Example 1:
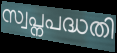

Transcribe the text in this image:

സ്വപ്നപദ്ധതി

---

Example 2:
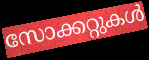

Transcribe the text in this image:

സോക്കറ്റുകൾ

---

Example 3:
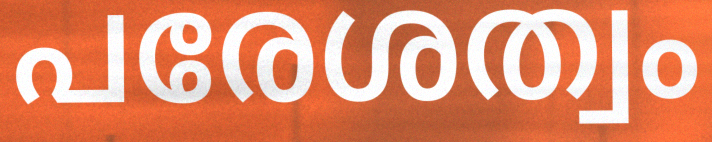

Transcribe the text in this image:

പരേശത്വം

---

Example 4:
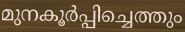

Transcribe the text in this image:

മുനകൂർപ്പിച്ചെത്തും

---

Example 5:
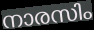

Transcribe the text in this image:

നാരസിം